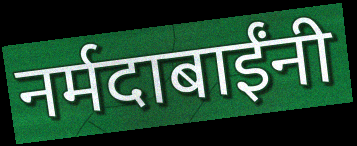
नर्मदाबाईंनी